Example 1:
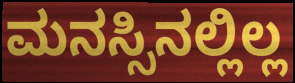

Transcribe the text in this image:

ಮನಸ್ಸಿನಲ್ಲಿಲ್ಲ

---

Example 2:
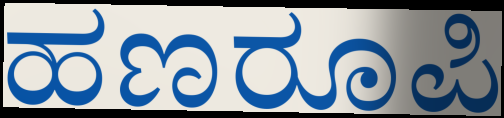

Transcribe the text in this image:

ಹಣರೂಪಿ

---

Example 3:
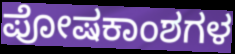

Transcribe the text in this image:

ಪೋಷಕಾಂಶಗಳ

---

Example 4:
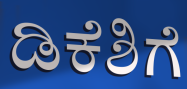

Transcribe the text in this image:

ಡಿಕೆಶಿಗೆ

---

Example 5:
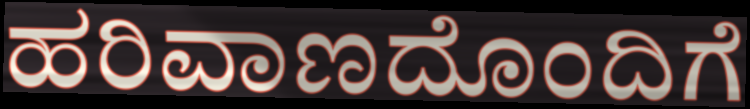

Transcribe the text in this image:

ಹರಿವಾಣದೊಂದಿಗೆ